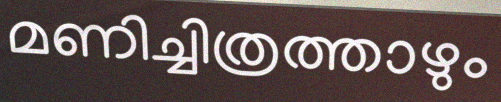
മണിച്ചിത്രത്താഴും